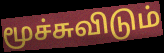
மூச்சுவிடும்